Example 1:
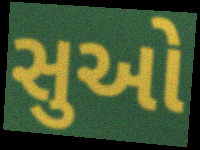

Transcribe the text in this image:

સુઓ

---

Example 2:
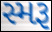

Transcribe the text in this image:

સ્મરૂ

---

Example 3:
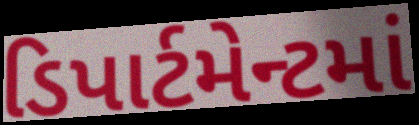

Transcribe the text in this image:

ડિપાર્ટમેન્ટમાં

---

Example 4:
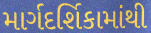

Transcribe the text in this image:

માર્ગદર્શિકામાંથી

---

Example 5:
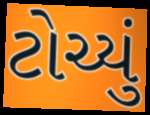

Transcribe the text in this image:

ટોચ્યું